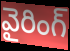
వైరింగ్